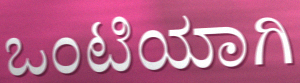
ಒಂಟಿಯಾಗಿ